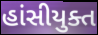
હાંસીયુક્ત